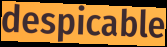
despicable